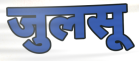
जुलसू